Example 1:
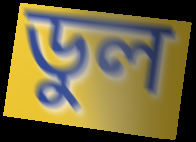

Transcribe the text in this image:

ডুল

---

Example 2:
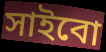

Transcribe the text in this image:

সাইবো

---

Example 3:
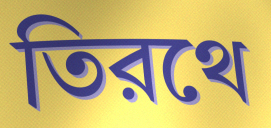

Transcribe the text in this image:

তিরথে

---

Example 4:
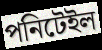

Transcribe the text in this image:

পনিটেইল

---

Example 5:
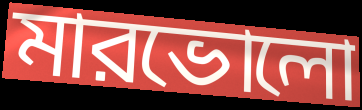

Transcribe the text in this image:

মারভোলো